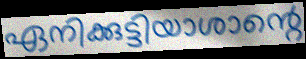
ഏനിക്കുട്ടിയാശാന്റെ